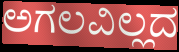
ಅಗಲವಿಲ್ಲದ